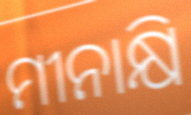
ମୀନାକ୍ଷି